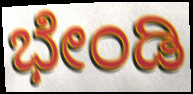
ಭೇಂಡಿ